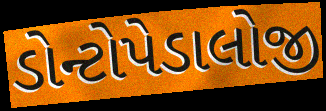
ડોન્ટોપેડાલોજી